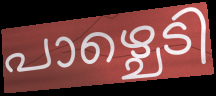
പാഴ്ചെടി